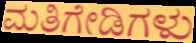
ಮತಿಗೇಡಿಗಳು